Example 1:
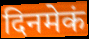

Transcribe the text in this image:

दिनमेकं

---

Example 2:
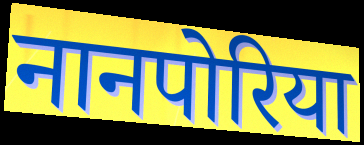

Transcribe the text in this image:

नानपोरिया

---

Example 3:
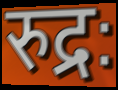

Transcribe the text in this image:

रुद्रः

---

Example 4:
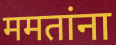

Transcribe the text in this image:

ममतांना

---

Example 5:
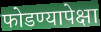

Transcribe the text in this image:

फोडण्यापेक्षा